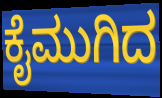
ಕೈಮುಗಿದ